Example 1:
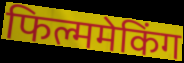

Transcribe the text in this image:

फिल्‍ममेकिंग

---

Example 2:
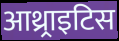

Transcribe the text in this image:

आथ्र्राइटिस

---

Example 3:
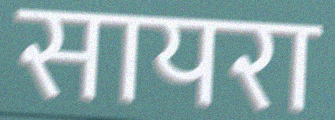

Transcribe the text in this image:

सायरा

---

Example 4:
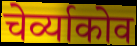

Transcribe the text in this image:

चेर्व्याकोव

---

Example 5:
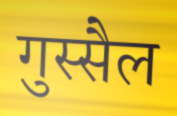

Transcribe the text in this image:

गुस्सैल